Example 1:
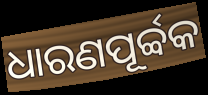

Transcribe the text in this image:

ଧାରଣପୂର୍ବ୍ବକ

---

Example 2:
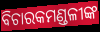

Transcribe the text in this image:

ବିଚାରକମଣ୍ଡଳୀଙ୍କ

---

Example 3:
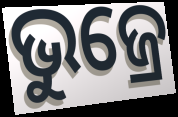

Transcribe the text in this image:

ଭୁଜ୍ରେ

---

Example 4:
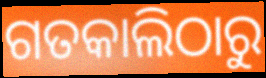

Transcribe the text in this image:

ଗତକାଲିଠାରୁ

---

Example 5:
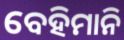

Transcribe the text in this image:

ବେହିମାନି